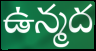
ఉన్మద